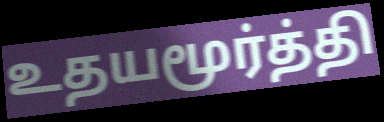
உதயமூர்த்தி